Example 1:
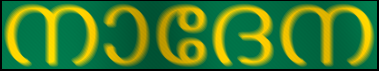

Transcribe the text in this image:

നാദേന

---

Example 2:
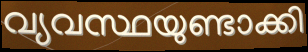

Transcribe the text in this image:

വ്യവസ്ഥയുണ്ടാക്കി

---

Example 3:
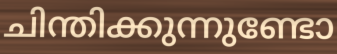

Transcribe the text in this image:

ചിന്തിക്കുന്നുണ്ടോ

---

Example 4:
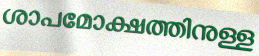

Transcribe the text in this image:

ശാപമോക്ഷത്തിനുള്ള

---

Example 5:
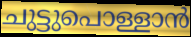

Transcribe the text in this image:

ചുട്ടുപൊള്ളാൻ